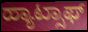
ಹ್ಯಾಟ್ಸಾಫ್